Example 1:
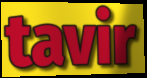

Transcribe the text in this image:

tavir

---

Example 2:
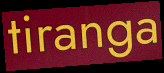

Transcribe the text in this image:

tiranga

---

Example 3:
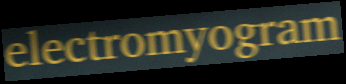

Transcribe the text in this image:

electromyogram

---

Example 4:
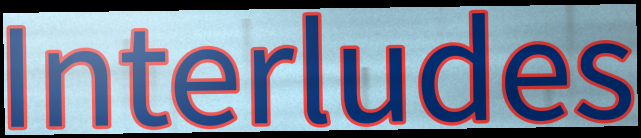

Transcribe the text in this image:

Interludes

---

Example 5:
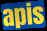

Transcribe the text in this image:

apis